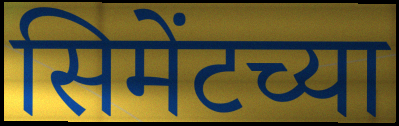
सिमेंटच्या